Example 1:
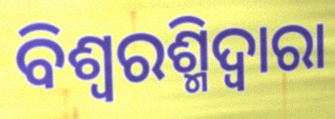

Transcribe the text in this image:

ବିଶ୍ୱରଶ୍ମିଦ୍ୱାରା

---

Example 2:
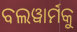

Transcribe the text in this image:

ବଲୱାର୍ମକୁ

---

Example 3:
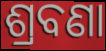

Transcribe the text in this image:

ଶ୍ରବଣା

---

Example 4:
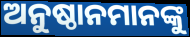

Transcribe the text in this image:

ଅନୁଷ୍ଠାନମାନଙ୍କୁ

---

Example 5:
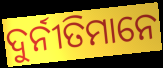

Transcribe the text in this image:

ଦୁର୍ନୀତିମାନେ